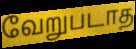
வேறுபடாத